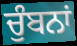
ਚੁੰਬਨਾਂ